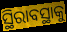
ସ୍ଥିରାବସ୍ଥାକୁ